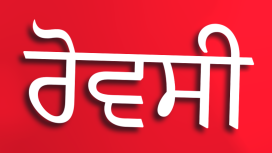
ਰੋਵਸੀ